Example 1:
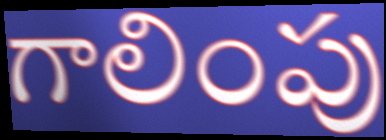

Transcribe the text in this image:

గాలింపు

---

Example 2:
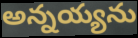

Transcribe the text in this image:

అన్నయ్యను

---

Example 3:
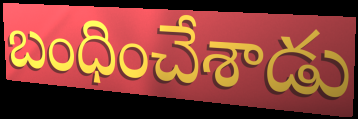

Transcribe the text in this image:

బంధించేశాడు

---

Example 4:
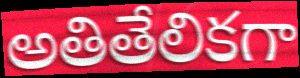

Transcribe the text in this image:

అతితేలికగా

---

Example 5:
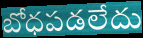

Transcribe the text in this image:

బోధపడలేదు